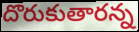
దొరుకుతారన్న